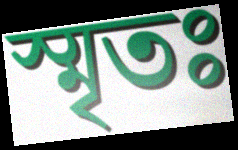
স্মৃতঃ